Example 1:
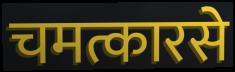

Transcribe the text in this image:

चमत्कारसे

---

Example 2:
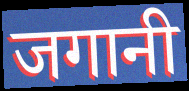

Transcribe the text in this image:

जगानी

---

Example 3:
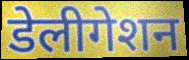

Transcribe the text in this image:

डेलीगेशन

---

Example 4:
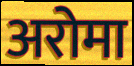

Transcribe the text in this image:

अरोमा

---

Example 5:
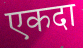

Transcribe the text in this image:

एकदा